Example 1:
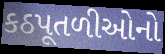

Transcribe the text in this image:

કઠપૂતળીઓનો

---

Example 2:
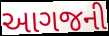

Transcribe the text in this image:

આગજની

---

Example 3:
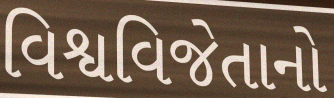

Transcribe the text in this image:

વિશ્વવિજેતાનો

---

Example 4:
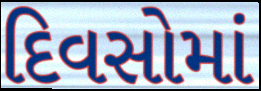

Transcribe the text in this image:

દિવસોમાં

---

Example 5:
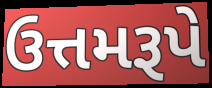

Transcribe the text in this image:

ઉત્તમરૂપે